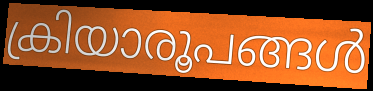
ക്രിയാരൂപങ്ങൾ